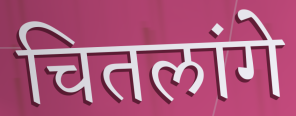
चितलांगे